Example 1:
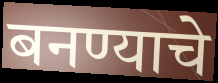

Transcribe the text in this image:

बनण्याचे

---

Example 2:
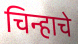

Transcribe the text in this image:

चिन्हाचे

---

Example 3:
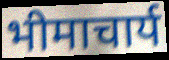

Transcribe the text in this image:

भीमाचार्य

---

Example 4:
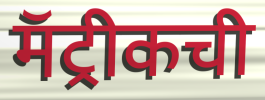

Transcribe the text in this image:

मॅट्रीकची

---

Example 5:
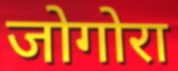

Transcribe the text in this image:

जोगोरा